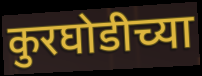
कुरघोडीच्या